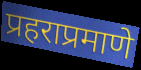
प्रहराप्रमाणे